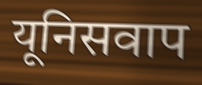
यूनिसवाप